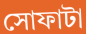
সোফাটা